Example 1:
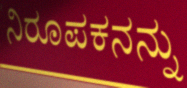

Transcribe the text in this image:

ನಿರೂಪಕನನ್ನು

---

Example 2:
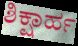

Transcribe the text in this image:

ಶಿಕ್ಷಾರ್ಹ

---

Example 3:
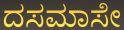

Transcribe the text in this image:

ದಸಮಾಸೇ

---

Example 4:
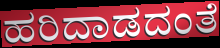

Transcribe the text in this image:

ಹರಿದಾಡದಂತೆ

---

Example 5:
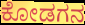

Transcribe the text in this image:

ಕೋಡಗನ